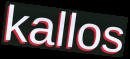
kallos